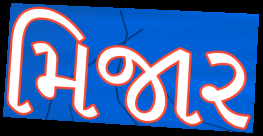
મિજાર